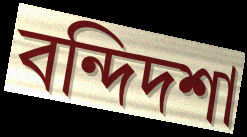
বন্দিদশা